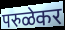
परुळेकर